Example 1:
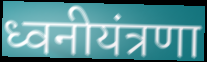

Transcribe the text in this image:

ध्वनीयंत्रणा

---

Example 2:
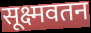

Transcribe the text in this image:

सूक्ष्मवतन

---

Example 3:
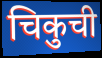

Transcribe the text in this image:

चिकुची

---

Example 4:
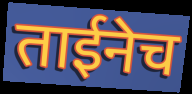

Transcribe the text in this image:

ताईनेच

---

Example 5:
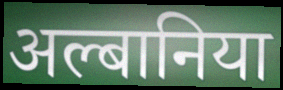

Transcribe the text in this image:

अल्बानिया